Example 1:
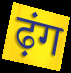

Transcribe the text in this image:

ढ़ंग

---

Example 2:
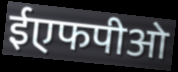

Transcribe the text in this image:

ईएफपीओ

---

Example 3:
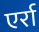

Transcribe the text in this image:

एर्रा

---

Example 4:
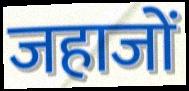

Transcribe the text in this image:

जहाजों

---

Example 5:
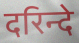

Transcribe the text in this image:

दरिन्दे